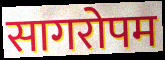
सागरोपम